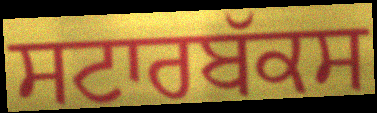
ਸਟਾਰਬੱਕਸ